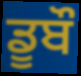
ਡੂਬੌ